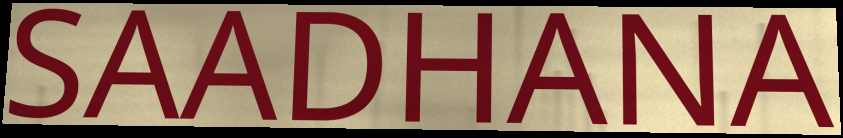
SAADHANA